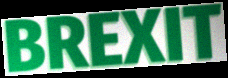
BREXIT